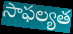
సాఫల్యత